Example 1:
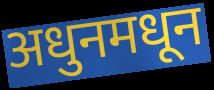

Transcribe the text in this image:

अधुनमधून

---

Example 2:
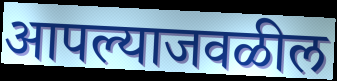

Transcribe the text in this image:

आपल्याजवळील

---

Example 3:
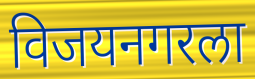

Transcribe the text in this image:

विजयनगरला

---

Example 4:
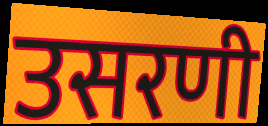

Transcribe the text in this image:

उसरणी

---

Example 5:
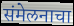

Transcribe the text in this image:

संमेलनाचा